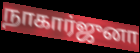
நாகார்ஜுனா